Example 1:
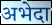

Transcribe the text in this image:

अभेदा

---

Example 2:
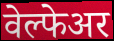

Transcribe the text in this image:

वेल्फेअर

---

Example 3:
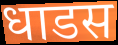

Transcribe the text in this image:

धाडस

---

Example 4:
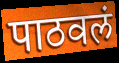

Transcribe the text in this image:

पाठवलं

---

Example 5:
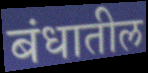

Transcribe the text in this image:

बंधातील